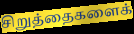
சிறுத்தைகளைக்